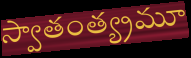
స్వాతంత్య్రమూ